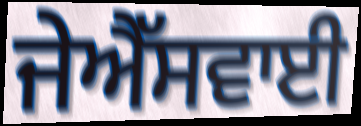
ਜੇਐੱਸਵਾਈ